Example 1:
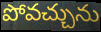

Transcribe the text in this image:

పోవచ్చును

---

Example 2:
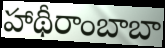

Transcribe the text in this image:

హాథీరాంబాబా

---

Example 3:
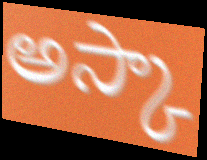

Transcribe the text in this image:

అస్కా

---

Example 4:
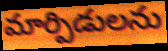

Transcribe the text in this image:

మార్పిడులను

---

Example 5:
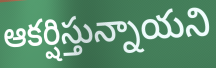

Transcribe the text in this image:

ఆకర్షిస్తున్నాయని